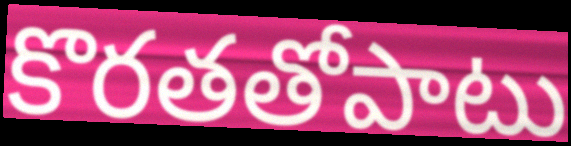
కొరతతోపాటు